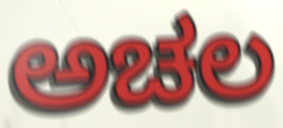
ಅಚಲ